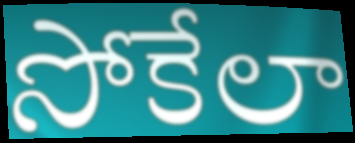
సోకేలా